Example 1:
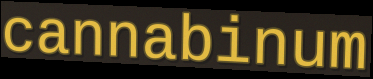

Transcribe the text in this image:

cannabinum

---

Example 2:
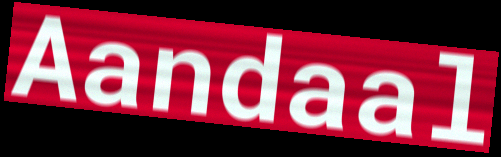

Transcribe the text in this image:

Aandaal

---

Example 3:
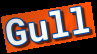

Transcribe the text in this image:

Gull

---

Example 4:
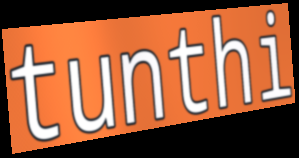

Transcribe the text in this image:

tunthi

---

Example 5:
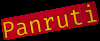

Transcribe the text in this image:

Panruti